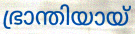
ഭ്രാന്തിയായ്